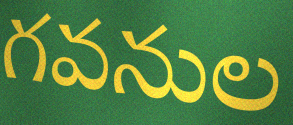
గవనుల